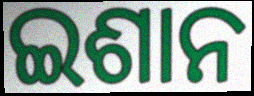
ଇଶାନ